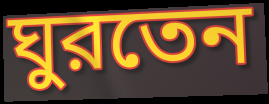
ঘুরতেন